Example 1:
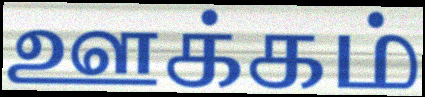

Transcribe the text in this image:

ஊக்கம்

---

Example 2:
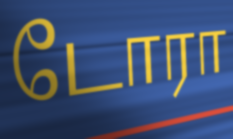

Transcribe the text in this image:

டோரா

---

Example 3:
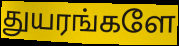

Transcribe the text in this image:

துயரங்களே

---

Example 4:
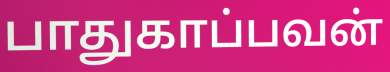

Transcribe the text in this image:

பாதுகாப்பவன்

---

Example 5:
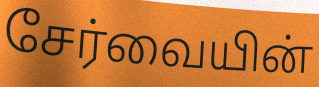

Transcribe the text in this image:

சேர்வையின்